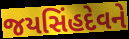
જયસિંહદેવને